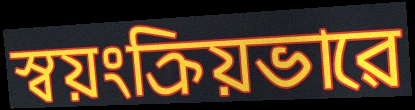
স্বয়ংক্ৰিয়ভাৱে